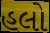
હલો